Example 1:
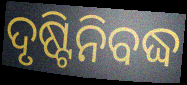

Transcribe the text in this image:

ଦୃଷ୍ଟିନିବଦ୍ଧ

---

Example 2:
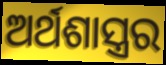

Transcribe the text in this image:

ଅର୍ଥଶାସ୍ତ୍ରର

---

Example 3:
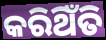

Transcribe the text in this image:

କରିଥିଁତି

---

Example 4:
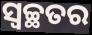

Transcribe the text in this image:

ସ୍ଵଚ୍ଛତର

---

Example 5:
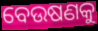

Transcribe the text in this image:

ବେଉଷଣକୁ